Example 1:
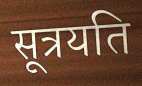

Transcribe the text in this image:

सूत्रयति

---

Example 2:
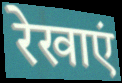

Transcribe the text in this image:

रेखाएं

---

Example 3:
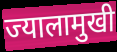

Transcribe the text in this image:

ज्यालामुखी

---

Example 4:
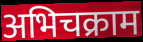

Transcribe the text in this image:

अभिचक्राम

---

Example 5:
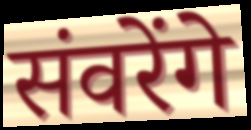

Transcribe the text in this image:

संवरेंगे